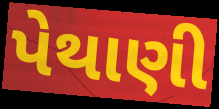
પેથાણી